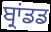
ਬ੍ਰਾਂਡਡ